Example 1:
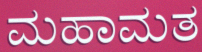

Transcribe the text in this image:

ಮಹಾಮತ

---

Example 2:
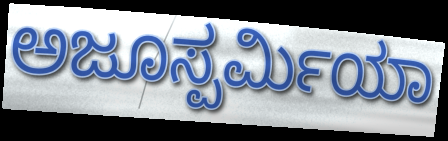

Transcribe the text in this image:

ಅಜೂಸ್ಪರ್ಮಿಯಾ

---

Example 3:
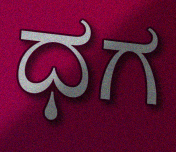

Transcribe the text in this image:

ಧಗ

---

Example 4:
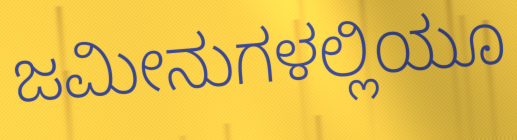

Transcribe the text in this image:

ಜಮೀನುಗಳಲ್ಲಿಯೂ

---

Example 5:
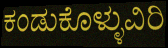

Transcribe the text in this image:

ಕಂಡುಕೊಳ್ಳುವಿರಿ